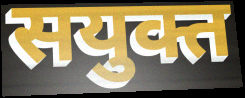
सयुक्त